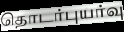
தொடர்புயர்வு